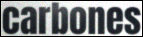
carbones